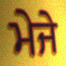
ਮੇਜੇ